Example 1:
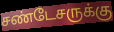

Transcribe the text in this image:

சண்டேசருக்கு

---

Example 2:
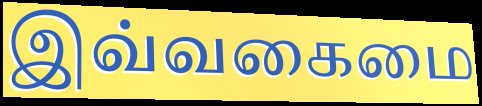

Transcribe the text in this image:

இவ்வகைமை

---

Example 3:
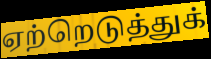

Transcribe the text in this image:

ஏற்றெடுத்துக்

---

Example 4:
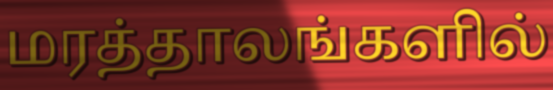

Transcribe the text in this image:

மரத்தாலங்களில்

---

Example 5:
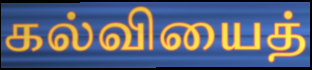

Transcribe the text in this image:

கல்வியைத்